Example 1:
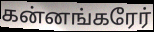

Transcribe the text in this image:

கன்னங்கரேர்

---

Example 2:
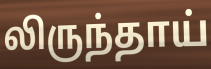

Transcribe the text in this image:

லிருந்தாய்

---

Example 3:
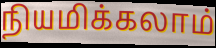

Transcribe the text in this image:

நியமிக்கலாம்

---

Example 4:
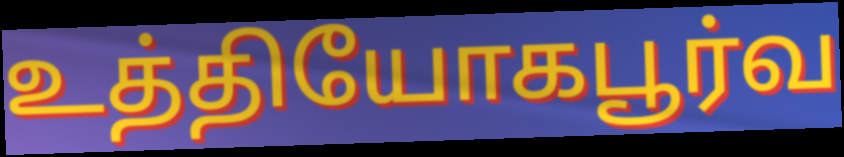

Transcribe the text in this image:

உத்தியோகபூர்வ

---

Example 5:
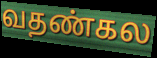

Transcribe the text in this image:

வதண்கல